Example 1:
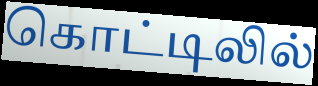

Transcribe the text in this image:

கொட்டிலில்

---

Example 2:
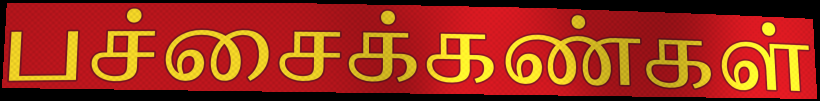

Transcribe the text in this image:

பச்சைக்கண்கள்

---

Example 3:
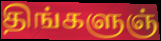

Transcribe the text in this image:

திங்களுஞ்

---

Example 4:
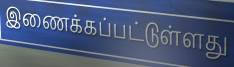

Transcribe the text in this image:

இணைக்கப்பட்டுள்ளது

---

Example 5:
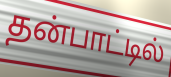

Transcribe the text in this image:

தன்பாட்டில்